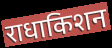
राधाकिशन